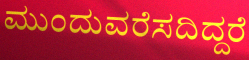
ಮುಂದುವರೆಸದಿದ್ದರೆ